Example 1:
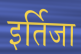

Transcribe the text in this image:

इर्तिजा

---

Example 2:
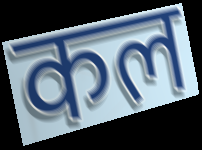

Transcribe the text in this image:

कल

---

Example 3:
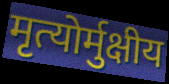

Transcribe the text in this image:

मृत्‍योर्मुक्षीय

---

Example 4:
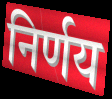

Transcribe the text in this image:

निर्णय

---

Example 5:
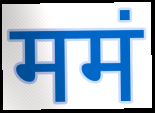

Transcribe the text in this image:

ममं